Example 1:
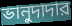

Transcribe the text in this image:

ভানুদাদার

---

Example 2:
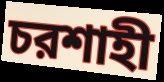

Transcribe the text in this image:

চরশাহী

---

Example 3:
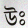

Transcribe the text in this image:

উঃ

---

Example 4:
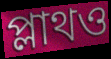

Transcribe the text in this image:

প্লাথও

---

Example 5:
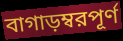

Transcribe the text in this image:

বাগাড়ম্বরপূর্ণ